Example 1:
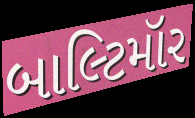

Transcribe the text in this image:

બાલ્ટિમૉર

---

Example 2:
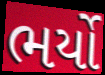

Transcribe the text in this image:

ભર્યો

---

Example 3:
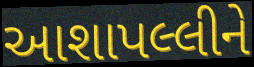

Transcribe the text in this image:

આશાપલ્લીને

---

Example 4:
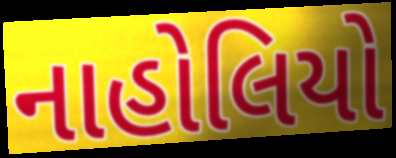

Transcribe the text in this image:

નાહોલિયો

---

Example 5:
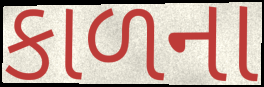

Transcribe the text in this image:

કાળના